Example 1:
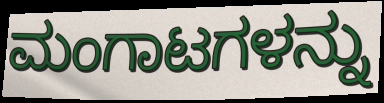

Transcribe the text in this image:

ಮಂಗಾಟಗಳನ್ನು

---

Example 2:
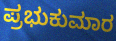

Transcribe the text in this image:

ಪ್ರಭುಕುಮಾರ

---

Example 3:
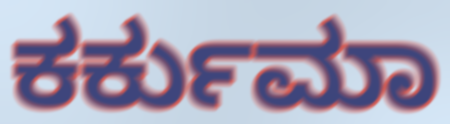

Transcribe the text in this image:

ಕರ್ಕುಮಾ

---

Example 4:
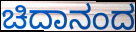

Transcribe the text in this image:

ಚಿದಾನಂದ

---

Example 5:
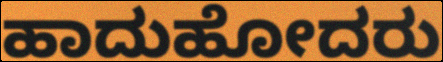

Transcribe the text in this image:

ಹಾದುಹೋದರು